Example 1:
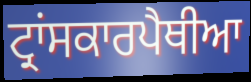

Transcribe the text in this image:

ਟ੍ਰਾਂਸਕਾਰਪੈਥੀਆ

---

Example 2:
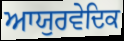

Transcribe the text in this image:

ਆਯੁਰਵੇਦਿਕ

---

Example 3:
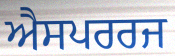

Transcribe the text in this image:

ਐਸਪਰਰਜ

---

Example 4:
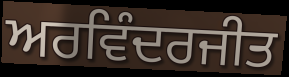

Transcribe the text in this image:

ਅਰਵਿੰਦਰਜੀਤ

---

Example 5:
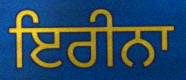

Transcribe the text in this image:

ਇਰੀਨਾ